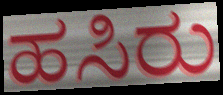
ಹಸಿರು